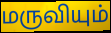
மருவியும்